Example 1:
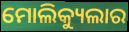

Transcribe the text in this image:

ମୋଲିକ୍ୟୁଲାର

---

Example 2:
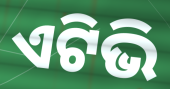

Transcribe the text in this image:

ଏଟିଭି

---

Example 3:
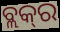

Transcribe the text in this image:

ବ୍ଲକ୍‍ର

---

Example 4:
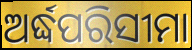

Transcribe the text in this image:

ଅର୍ଦ୍ଧପରିସୀମା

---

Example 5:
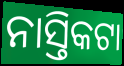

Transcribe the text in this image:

ନାସ୍ତିକଟା